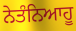
ਨੇਤੰਨਿਆਹੂ